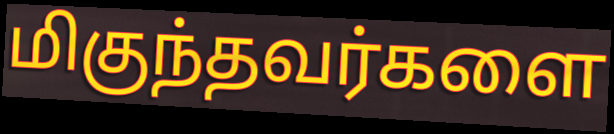
மிகுந்தவர்களை